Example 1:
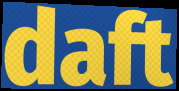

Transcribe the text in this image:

daft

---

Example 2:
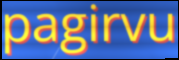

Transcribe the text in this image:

pagirvu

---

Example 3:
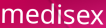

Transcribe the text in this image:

medisex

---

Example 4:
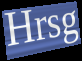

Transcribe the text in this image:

Hrsg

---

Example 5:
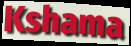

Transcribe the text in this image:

Kshama